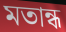
মতান্ধ